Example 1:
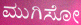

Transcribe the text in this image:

ಮುಗಿಸೋ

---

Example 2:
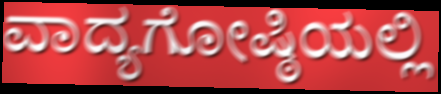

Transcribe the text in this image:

ವಾದ್ಯಗೋಷ್ಠಿಯಲ್ಲಿ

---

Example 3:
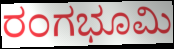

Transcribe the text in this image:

ರಂಗಭೂಮಿ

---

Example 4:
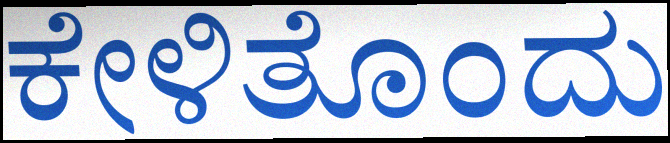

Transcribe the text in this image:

ಕೇಳಿತೊಂದು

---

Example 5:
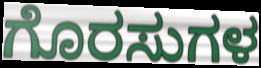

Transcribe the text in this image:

ಗೊರಸುಗಳ